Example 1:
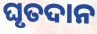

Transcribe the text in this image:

ଘୃତଦାନ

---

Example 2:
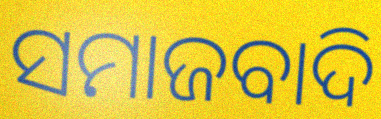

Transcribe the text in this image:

ସମାଜବାଦି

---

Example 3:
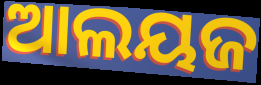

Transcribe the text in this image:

ଆଲୟଜ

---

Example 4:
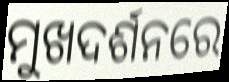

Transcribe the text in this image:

ମୁଖଦର୍ଶନରେ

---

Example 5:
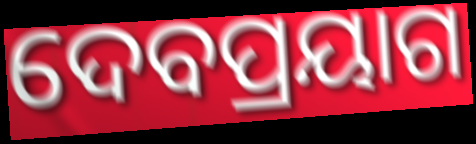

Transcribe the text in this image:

ଦେବପ୍ରୟାଗ